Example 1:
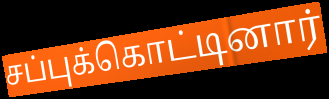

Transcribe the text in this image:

சப்புக்கொட்டினார்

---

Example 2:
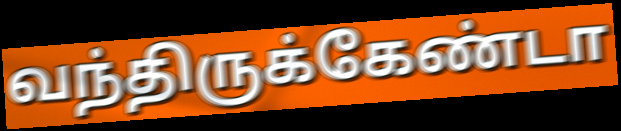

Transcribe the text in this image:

வந்திருக்கேண்டா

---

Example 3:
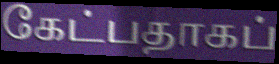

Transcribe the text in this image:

கேட்பதாகப்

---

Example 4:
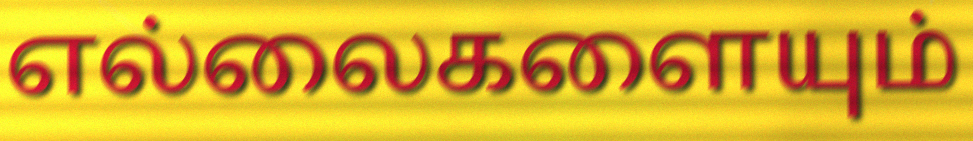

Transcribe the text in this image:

எல்லைகளையும்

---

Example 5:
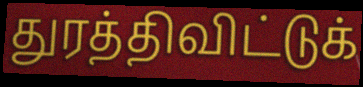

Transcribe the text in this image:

துரத்திவிட்டுக்